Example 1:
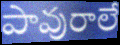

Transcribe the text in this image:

పావురాలే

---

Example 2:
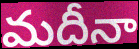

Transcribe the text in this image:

మదీనా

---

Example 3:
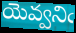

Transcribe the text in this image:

యెవ్వనిఁ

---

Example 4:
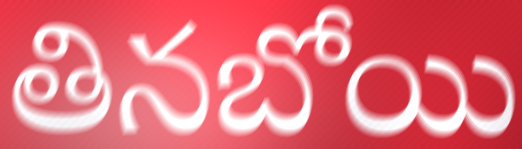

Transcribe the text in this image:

తినబోయి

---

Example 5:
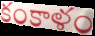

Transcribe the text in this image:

కంకాళం